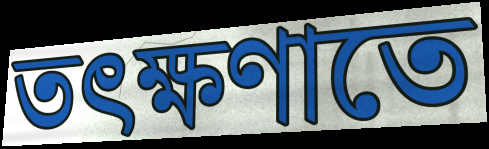
তৎক্ষণাতে